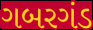
ગબરગંડ